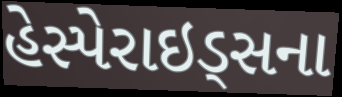
હેસ્પેરાઇડ્સના